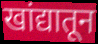
खांद्यातून